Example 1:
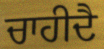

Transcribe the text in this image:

ਚਾਹੀਦੈ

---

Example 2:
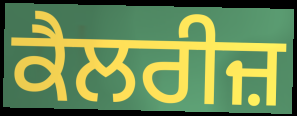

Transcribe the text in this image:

ਕੈਲਰੀਜ਼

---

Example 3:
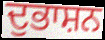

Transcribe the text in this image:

ਦੁਭਾਸ਼ਨ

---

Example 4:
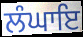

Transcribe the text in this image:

ਲੰਘਾਇ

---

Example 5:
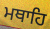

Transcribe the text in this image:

ਮਥਾਹਿ